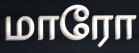
மாரோ